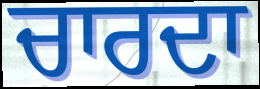
ਚਾਰਦਾ